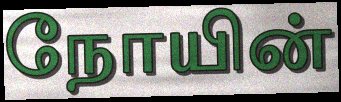
நோயின்